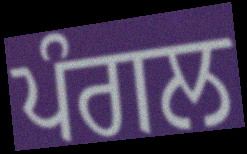
ਪੰਗਲ